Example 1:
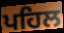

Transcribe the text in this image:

ਪਹਿਲ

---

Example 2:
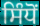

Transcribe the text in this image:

ਸਿੰਧੋਂ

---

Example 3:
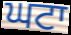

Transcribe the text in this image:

ਘਟਾ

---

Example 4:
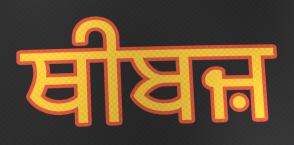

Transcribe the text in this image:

ਥੀਬਜ਼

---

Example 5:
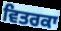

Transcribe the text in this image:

ਵਿਤਰਕਾ